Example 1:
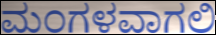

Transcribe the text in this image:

ಮಂಗಳವಾಗಲಿ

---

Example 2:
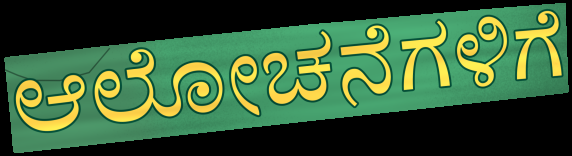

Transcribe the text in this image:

ಆಲೋಚನೆಗಳಿಗೆ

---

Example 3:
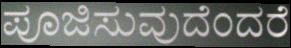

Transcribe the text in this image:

ಪೂಜಿಸುವುದೆಂದರೆ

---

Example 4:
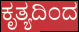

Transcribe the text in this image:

ಕೃತ್ಯದಿಂದ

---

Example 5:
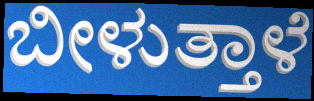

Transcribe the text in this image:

ಬೀಳುತ್ತಾಳೆ